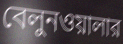
বেলুনওয়ালার